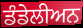
ਡੰਡੇਲੀਅਨ